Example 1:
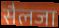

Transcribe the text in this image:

सैलजा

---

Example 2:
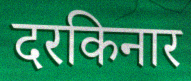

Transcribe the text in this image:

दरकिनार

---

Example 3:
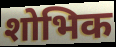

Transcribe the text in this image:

शोभिक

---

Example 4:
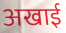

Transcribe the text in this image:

अखाई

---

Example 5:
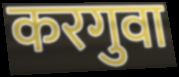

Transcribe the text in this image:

करगुवा